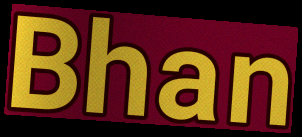
Bhan